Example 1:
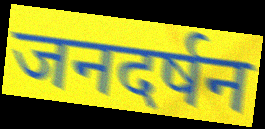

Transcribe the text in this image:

जनदर्षन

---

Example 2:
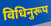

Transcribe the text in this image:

विधिनुरूप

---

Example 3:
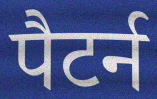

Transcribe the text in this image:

पैटर्न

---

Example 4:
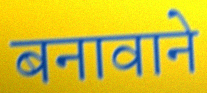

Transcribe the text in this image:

बनावाने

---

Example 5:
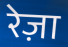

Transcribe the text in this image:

रेज़ा